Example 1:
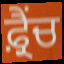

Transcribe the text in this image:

ਫ਼੍ਰੈਂਚ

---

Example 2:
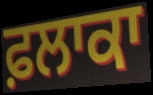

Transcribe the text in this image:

ਫ਼ਲਾਕਾ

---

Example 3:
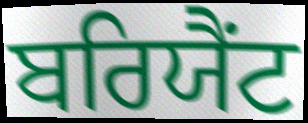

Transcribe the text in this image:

ਬਰਿਯੈਂਟ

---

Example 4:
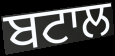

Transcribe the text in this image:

ਬਟਾਲ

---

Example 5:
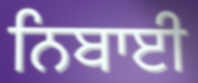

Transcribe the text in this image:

ਨਿਬਾਈ